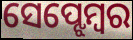
ସେପ୍ଝେମ୍ବର